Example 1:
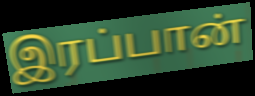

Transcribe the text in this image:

இரப்பான்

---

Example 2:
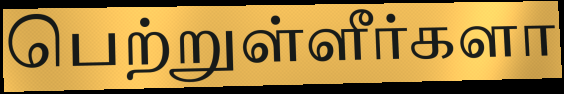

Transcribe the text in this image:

பெற்றுள்ளீர்களா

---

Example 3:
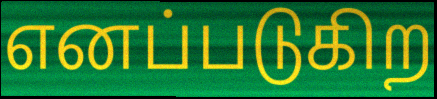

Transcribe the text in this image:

எனப்படுகிற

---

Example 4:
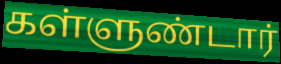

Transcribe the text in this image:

கள்ளுண்டார்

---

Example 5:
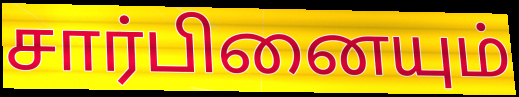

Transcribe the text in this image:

சார்பினையும்